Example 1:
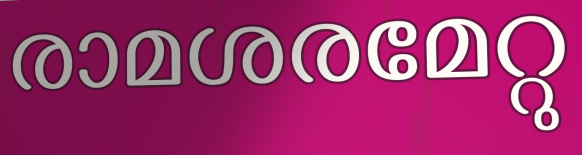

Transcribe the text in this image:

രാമശരമേറ്റു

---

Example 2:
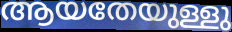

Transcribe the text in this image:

ആയതേയുള്ളു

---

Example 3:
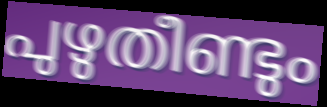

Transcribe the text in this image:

പുഴുതീണ്ടും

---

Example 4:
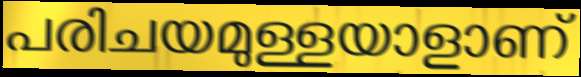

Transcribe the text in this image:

പരിചയമുള്ളയാളാണ്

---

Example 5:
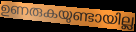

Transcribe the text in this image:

ഉണരുകയുണ്ടായില്ല